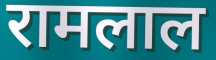
रामलाल